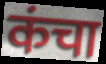
कंचा